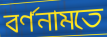
বর্ণনামতে